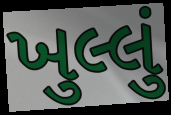
ખુલ્લું